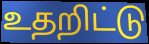
உதறிட்டு